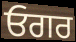
ਓਗਰ